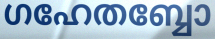
ഗഹേതബ്ബോ